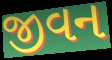
જીવન